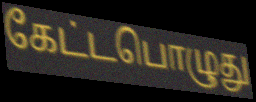
கேட்டபொழுது